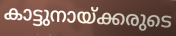
കാട്ടുനായ്ക്കരുടെ